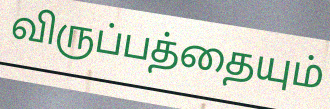
விருப்பத்தையும்